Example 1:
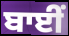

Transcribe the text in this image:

ਬਾਈਂ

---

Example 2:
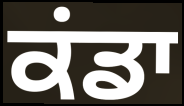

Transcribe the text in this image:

ਕਂਡਾ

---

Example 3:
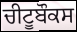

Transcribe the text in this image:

ਚੀਟੂਬੌਕਸ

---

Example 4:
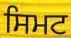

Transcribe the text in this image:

ਸਿਮਟ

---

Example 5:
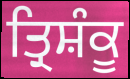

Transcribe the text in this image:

ਤ੍ਰਿਸ਼ੰਕੂ